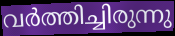
വർത്തിച്ചിരുന്നു